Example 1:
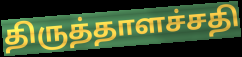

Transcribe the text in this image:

திருத்தாளச்சதி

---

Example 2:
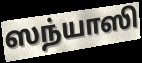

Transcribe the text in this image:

ஸந்யாஸி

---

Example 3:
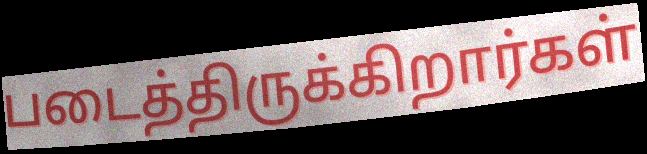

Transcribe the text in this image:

படைத்திருக்கிறார்கள்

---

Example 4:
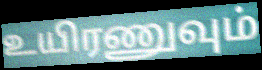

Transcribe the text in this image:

உயிரணுவும்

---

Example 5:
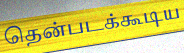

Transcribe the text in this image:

தென்படக்கூடிய